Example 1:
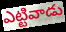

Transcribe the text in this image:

ఎట్టివాడు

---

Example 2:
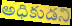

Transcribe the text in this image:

అధికుడని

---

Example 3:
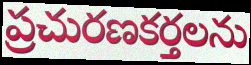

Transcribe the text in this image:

ప్రచురణకర్తలను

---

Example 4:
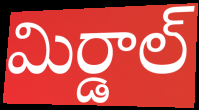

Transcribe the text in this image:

మిర్డాల్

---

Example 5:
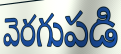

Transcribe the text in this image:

వెరగుపడి